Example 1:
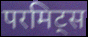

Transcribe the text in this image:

परमिट्स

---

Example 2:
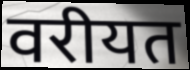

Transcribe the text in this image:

वरीयत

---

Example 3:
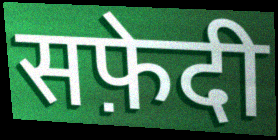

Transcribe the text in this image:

सफ़ेदी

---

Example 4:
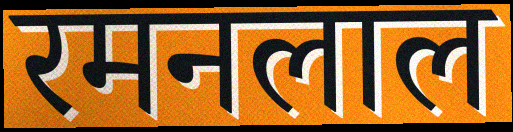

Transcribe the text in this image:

रमनलाल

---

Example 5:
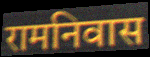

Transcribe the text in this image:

रामनिवास